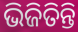
ଭିଜିତିନ୍ତି